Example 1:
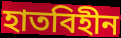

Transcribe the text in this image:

হাতবিহীন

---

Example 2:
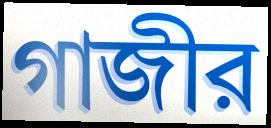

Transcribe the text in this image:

গাজীর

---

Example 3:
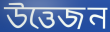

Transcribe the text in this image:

উত্তেজন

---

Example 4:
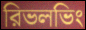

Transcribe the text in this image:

রিভলভিং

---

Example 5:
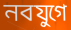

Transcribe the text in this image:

নবযুগে